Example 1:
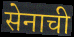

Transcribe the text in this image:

सेनाची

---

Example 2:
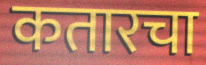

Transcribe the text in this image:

कतारचा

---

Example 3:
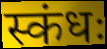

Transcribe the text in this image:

स्कंधः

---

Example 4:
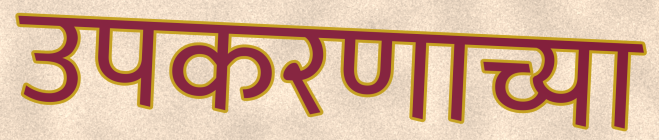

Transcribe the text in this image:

उपकरणाच्या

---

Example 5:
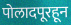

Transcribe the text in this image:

पोलादपूरहून